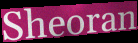
Sheoran